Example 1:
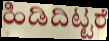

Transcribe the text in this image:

ಹಿಡಿದಿಟ್ಟರೆ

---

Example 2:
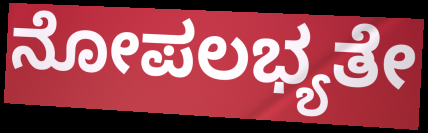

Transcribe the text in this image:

ನೋಪಲಭ್ಯತೇ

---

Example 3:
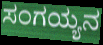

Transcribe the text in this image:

ಸಂಗಯ್ಯನ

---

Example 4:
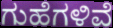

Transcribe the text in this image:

ಗುಹೆಗಳಿವೆ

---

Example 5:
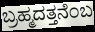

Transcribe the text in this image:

ಬ್ರಹ್ಮದತ್ತನೆಂಬ